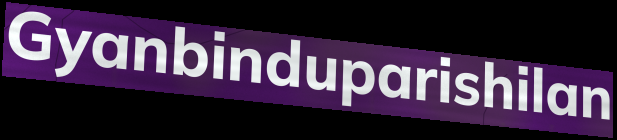
Gyanbinduparishilan